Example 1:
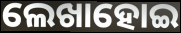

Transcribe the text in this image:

ଲେଖାହୋଇ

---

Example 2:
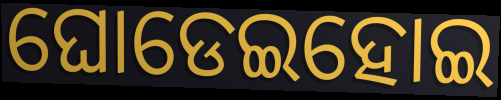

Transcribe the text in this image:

ଘୋଡେଇହୋଇ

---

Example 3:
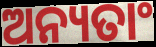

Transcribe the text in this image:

ଅନ୍ୟତାଂ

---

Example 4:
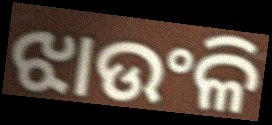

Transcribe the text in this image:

ଝାଉଂଳି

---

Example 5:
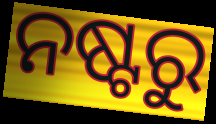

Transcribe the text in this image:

ନଷ୍ଟରୁ